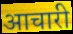
आचारी